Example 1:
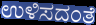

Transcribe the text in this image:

ಉಳಿಸದಂತೆ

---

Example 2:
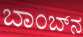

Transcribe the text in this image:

ಬಾಂಬ್‍ನ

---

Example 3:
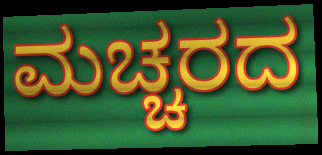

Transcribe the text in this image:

ಮಚ್ಚರದ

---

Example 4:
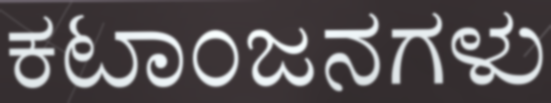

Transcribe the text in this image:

ಕಟಾಂಜನಗಳು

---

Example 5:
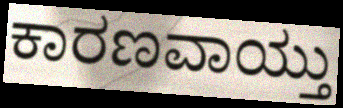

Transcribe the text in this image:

ಕಾರಣವಾಯ್ತು